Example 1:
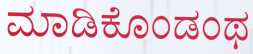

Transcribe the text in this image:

ಮಾಡಿಕೊಂಡಂಥ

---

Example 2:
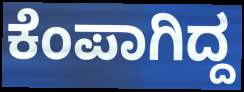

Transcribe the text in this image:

ಕೆಂಪಾಗಿದ್ದ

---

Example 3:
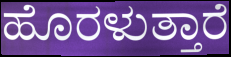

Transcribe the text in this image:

ಹೊರಳುತ್ತಾರೆ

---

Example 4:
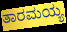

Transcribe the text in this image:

ತಾರಮಯ್ಯ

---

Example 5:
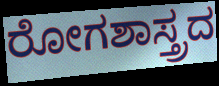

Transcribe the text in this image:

ರೋಗಶಾಸ್ತ್ರದ